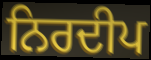
ਨਿਰਦੀਪ